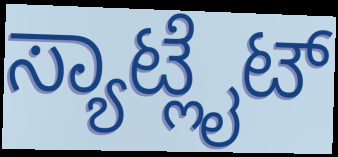
ಸ್ಯಾಟ್ಲೈಟ್